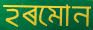
হৰমোন